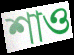
শাও